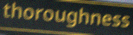
thoroughness